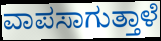
ವಾಪಸಾಗುತ್ತಾಳೆ